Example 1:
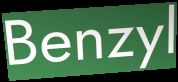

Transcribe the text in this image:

Benzyl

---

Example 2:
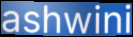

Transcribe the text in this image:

ashwini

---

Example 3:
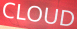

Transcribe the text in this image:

CLOUD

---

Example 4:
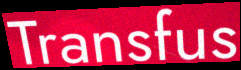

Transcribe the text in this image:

Transfus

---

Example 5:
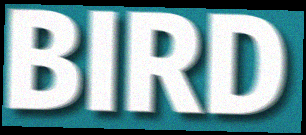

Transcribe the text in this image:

BIRD